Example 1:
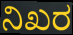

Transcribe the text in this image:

ನಿಖರ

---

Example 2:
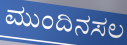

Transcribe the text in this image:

ಮುಂದಿನಸಲ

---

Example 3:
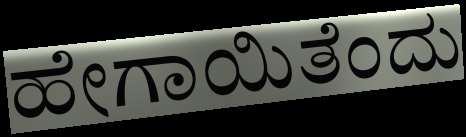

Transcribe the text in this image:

ಹೇಗಾಯಿತೆಂದು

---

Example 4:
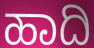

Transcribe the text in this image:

ಹಾದಿ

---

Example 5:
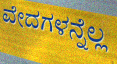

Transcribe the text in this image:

ವೇದಗಳನ್ನೆಲ್ಲ